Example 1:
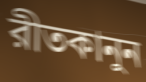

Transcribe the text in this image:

রীতকানুন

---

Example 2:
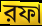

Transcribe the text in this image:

রফা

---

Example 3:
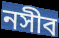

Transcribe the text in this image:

নসীব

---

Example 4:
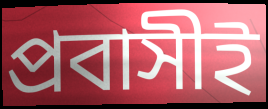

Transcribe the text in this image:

প্রবাসীই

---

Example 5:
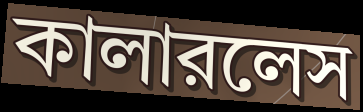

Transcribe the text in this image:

কালারলেস